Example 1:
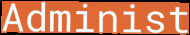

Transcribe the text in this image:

Administ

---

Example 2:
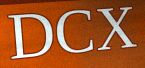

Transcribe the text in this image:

DCX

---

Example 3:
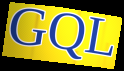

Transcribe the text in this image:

GQL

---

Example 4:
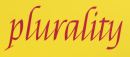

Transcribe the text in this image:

plurality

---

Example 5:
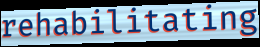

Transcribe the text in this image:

rehabilitating